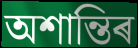
অশান্তিৰ